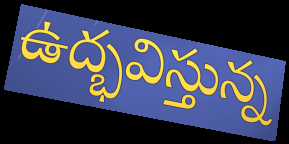
ఉద్భవిస్తున్న